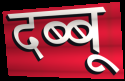
दब्बू